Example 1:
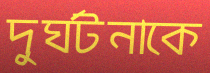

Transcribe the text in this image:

দুর্ঘটনাকে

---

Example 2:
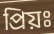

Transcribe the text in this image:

প্রিয়ঃ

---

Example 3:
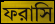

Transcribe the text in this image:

ফরাসি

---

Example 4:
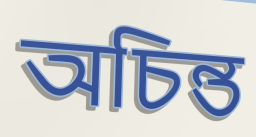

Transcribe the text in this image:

অচিন্ত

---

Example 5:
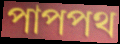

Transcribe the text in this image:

পাপপথ